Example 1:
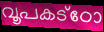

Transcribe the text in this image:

വൂപകട്ഠോ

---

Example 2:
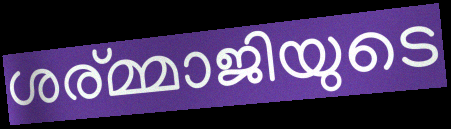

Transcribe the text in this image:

ശര്മ്മാജിയുടെ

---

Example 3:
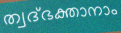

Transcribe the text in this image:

ത്വദ്ഭക്താനാം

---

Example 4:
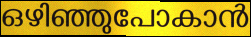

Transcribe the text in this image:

ഒഴിഞ്ഞുപോകാൻ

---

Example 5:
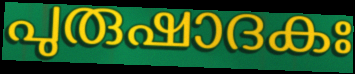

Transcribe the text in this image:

പുരുഷാദകഃ